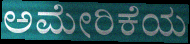
ಅಮೇರಿಕೆಯ